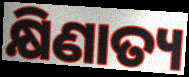
କ୍ଷିଣାତ୍ୟ